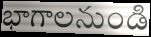
భాగాలనుండి